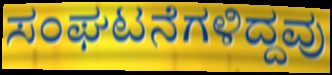
ಸಂಘಟನೆಗಳಿದ್ದವು